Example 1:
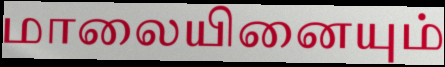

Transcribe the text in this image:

மாலையினையும்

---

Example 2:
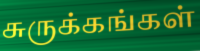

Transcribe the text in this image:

சுருக்கங்கள்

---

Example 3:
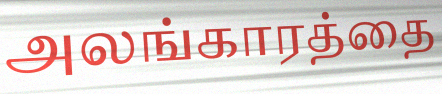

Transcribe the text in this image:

அலங்காரத்தை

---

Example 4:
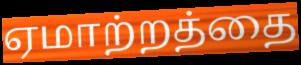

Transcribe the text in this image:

ஏமாற்றத்தை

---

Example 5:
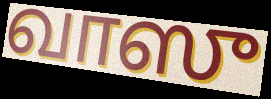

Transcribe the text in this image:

வாஸு